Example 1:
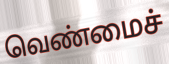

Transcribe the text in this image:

வெண்மைச்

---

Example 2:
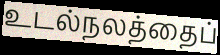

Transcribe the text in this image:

உடல்நலத்தைப்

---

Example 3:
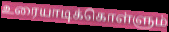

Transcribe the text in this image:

உரையாடிக்கொள்ளும்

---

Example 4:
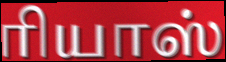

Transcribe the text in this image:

ரியாஸ்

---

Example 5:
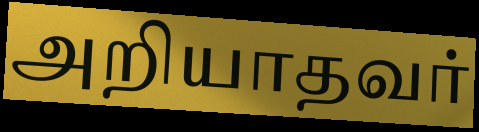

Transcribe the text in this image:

அறியாதவர்